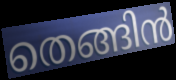
തെങ്ങിൻ